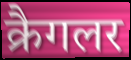
क्रैगलर